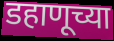
डहाणूच्या